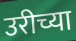
उरीच्या